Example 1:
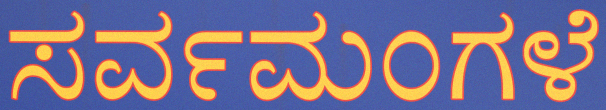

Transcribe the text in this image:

ಸರ್ವಮಂಗಳೆ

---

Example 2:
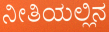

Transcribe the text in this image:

ನೀತಿಯಲ್ಲಿನ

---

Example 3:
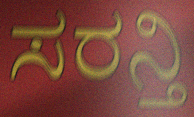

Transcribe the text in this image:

ಸರನ್ತಿ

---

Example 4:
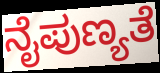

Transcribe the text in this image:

ನೈಪುಣ್ಯತೆ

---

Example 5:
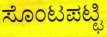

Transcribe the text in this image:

ಸೊಂಟಪಟ್ಟಿ